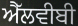
ਐੱਲਵੀਬੀ